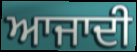
ਆਜਾਦੀ